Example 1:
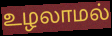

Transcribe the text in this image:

உழலாமல்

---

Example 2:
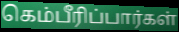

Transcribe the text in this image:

கெம்பீரிப்பார்கள்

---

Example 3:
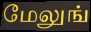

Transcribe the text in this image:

மேலுங்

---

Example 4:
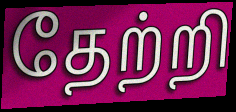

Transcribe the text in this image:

தேற்றி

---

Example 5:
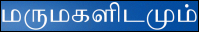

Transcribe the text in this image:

மருமகளிடமும்